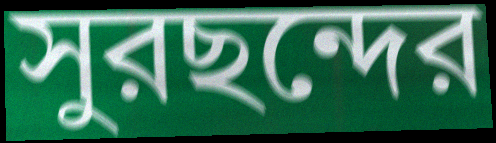
সুরছন্দের